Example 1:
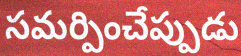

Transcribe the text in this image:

సమర్పించేప్పుడు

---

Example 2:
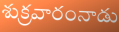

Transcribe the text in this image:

శుక్రవారంనాడు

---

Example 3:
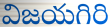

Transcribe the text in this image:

విజయగిరి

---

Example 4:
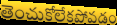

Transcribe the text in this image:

తెంచుకోలేకపోవడం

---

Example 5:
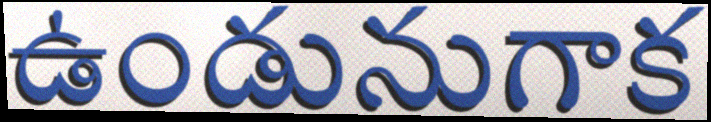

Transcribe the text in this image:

ఉండునుగాక